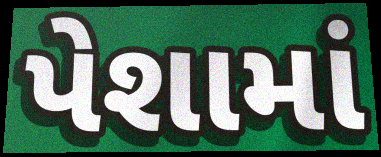
પેશામાં